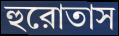
হুরোতাস